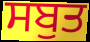
ਸਬੁਤ